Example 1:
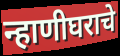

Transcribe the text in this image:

न्हाणीघराचे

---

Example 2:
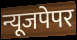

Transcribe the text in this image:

न्यूजपेपर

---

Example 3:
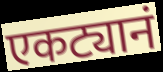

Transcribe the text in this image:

एकट्यानं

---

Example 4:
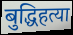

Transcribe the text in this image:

बुद्धिहत्या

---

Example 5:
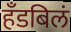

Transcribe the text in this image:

हँडबिलं